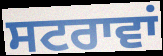
ਸਟਰਾਵਾਂ